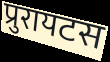
प्रुरायटस